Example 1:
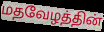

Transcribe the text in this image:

மதவேழத்தின்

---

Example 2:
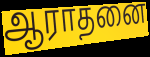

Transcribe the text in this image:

ஆராதனை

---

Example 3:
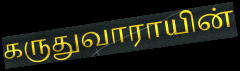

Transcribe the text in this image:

கருதுவாராயின்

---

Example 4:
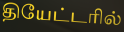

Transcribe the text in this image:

தியேட்டரில்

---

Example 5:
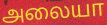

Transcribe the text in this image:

அலையா